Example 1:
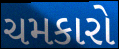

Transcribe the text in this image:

ચમકારો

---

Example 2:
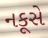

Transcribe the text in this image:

નકૂસે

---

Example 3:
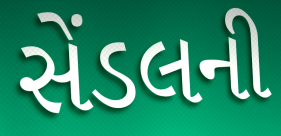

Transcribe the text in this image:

સેંડલની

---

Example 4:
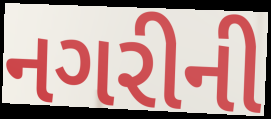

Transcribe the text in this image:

નગરીની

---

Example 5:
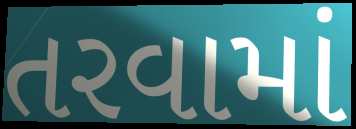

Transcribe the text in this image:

તરવામાં